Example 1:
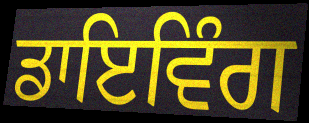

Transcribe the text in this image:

ਡਾਇਵਿੰਗ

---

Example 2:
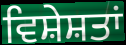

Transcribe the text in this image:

ਵਿਸ਼ੇਸ਼ਤਾਂ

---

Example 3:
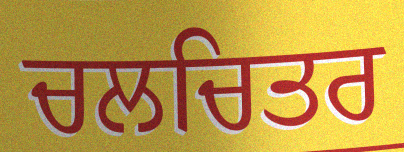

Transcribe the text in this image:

ਚਲਚਿਤਰ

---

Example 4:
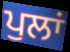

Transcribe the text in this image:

ਪੁਲਾਂ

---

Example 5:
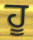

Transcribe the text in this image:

ਹੂ